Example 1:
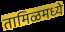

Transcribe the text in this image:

तामिळमध्ये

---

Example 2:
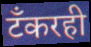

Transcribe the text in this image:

टँकरही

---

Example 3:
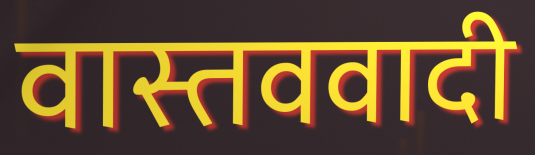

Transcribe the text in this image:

वास्तववादी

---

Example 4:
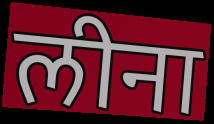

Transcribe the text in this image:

लीना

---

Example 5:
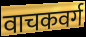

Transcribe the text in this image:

वाचकवर्ग